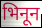
भिनून